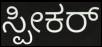
ಸ್ಪೀಕರ್